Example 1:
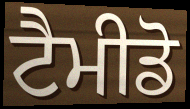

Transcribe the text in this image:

ਟੈਮੀਡੋ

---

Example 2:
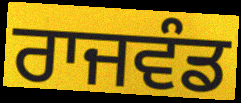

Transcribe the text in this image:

ਰਾਜਵੰਡ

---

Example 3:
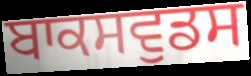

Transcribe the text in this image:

ਬਾਕਸਵੁਡਸ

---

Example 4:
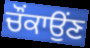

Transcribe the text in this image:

ਚੌਂਕਾਉਂਣ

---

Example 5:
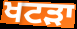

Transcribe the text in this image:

ਖਟੜਾ